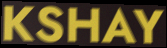
KSHAY